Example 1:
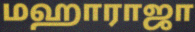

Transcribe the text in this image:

மஹாராஜா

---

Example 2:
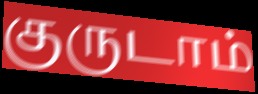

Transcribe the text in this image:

குருடாம்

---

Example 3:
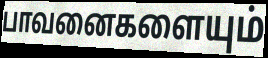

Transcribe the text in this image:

பாவனைகளையும்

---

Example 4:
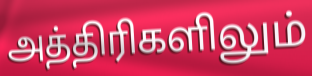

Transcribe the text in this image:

அத்திரிகளிலும்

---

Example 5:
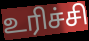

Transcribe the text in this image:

உரிச்சி